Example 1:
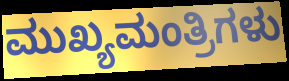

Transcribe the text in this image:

ಮುಖ್ಯಮಂತ್ರಿಗಳು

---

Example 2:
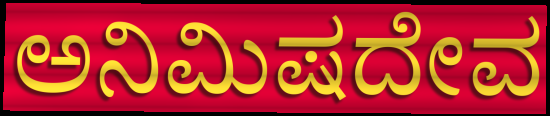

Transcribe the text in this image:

ಅನಿಮಿಷದೇವ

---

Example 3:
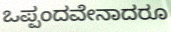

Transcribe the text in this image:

ಒಪ್ಪಂದವೇನಾದರೂ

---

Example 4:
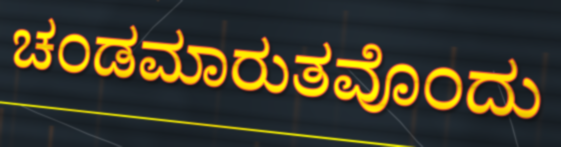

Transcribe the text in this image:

ಚಂಡಮಾರುತವೊಂದು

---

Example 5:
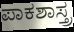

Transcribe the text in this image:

ಪಾಕಶಾಸ್ತ್ರ